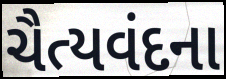
ચૈત્યવંદના